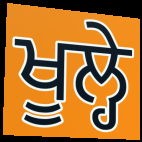
ਖੂਲ੍ਹ੍ਹੇ